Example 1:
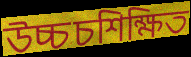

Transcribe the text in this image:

উচ্চচশিক্ষিত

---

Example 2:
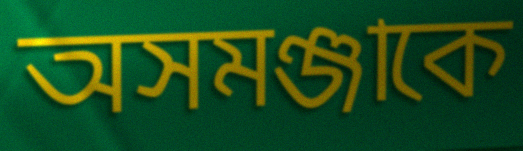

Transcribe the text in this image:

অসমঞ্জাকে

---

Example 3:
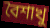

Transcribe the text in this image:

বৈশাখু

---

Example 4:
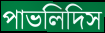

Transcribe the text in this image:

পাভলিদিস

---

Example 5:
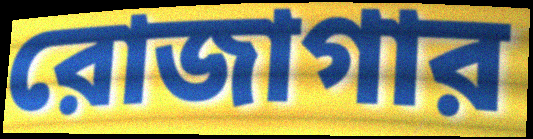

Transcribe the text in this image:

রোজাগার